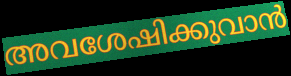
അവശേഷിക്കുവാൻ